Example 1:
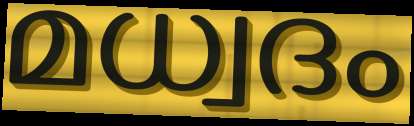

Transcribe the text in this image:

മധ്വദം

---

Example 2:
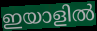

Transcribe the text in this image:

ഇയാളിൽ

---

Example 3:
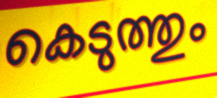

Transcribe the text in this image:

കെടുത്തും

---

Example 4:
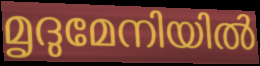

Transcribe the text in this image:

മൃദുമേനിയിൽ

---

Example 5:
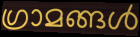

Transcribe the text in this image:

ഗ്രാമങ്ങൾ